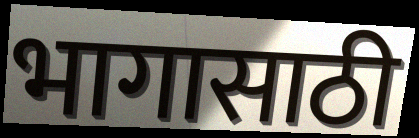
भागासाठी